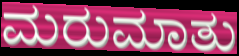
ಮರುಮಾತು